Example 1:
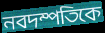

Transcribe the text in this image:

নবদম্পতিকে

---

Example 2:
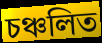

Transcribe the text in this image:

চঞ্চলিত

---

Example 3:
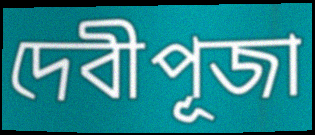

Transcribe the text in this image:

দেবীপূজা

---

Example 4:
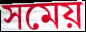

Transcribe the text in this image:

সমেয়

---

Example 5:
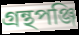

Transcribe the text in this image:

গ্রন্থপঞ্জি